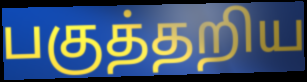
பகுத்தறிய